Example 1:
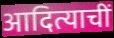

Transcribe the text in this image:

आदित्याचीं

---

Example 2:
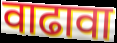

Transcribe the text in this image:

वाढावा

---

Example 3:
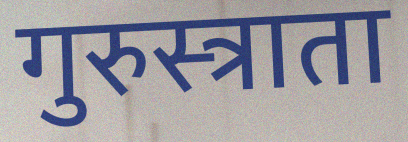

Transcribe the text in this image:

गुरुस्त्राता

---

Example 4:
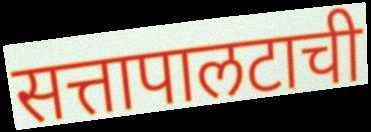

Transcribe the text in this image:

सत्तापालटाची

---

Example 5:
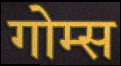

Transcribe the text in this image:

गोम्स